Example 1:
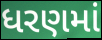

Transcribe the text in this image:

ધરણમાં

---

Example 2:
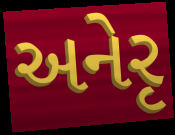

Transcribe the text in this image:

અનેરૃ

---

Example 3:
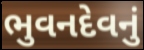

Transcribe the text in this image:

ભુવનદેવનું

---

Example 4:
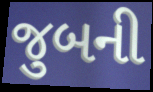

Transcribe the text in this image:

જુબની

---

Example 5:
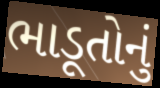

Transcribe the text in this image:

ભાડૂતોનું